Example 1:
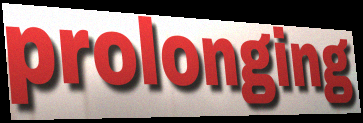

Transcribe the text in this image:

prolonging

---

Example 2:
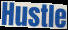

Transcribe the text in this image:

Hustle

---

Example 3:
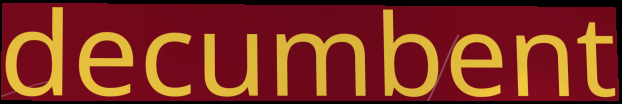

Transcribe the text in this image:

decumbent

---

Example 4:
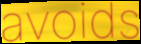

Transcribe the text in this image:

avoids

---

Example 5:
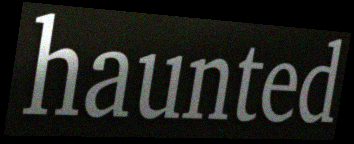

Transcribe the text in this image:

haunted